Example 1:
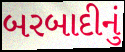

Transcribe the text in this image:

બરબાદીનું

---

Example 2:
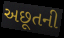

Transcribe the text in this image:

અછૂતની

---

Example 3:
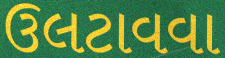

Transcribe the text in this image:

ઉલટાવવા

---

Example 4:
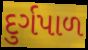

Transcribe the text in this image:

દુર્ગપાળ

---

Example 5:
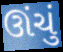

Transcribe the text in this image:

ઊંચું